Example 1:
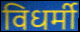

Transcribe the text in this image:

विधर्मी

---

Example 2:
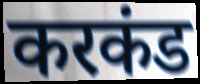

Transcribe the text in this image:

करकंड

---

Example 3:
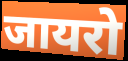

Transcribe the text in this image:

जायरो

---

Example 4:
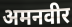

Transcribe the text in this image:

अमनवीर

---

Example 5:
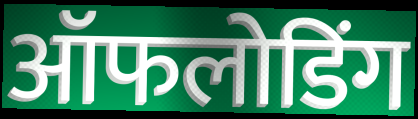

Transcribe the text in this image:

ऑफलोडिंग